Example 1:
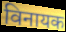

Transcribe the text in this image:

विनायक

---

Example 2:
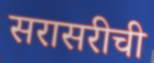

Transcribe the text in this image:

सरासरीची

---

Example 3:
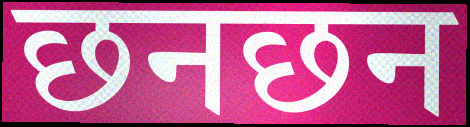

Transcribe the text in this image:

छनछन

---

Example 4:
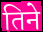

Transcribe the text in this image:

तिने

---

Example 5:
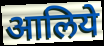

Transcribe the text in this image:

आलिये